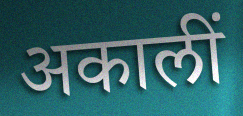
अकालीं